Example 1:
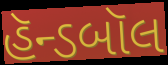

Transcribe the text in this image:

હૅન્ડબૉલ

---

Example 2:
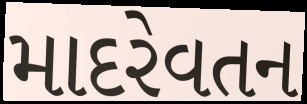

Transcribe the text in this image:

માદરેવતન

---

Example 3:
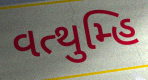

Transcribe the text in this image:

વત્થુમ્હિ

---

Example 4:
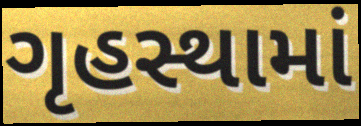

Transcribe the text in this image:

ગૃહસ્થામાં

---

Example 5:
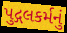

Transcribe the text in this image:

પુદ્ગલકર્મનું